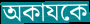
অকাযকে